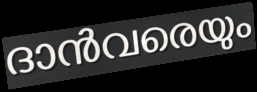
ദാൻവരെയും